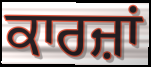
ਕਾਰਜ਼ਾਂ